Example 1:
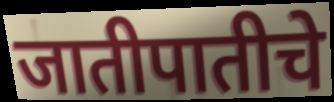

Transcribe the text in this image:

जातीपातीचे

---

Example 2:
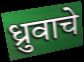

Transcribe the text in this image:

ध्रुवाचे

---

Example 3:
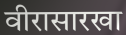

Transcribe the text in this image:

वीरासारखा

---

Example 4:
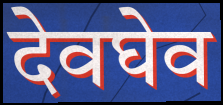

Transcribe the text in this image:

देवघेव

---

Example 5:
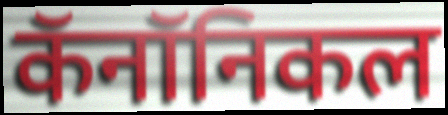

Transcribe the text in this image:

कॅनॉनिकल